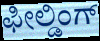
ಫೀಲ್ಡಿಂಗ್